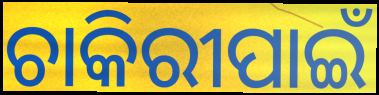
ଚାକିରୀପାଇଁ